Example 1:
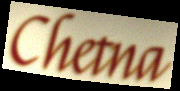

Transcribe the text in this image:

Chetna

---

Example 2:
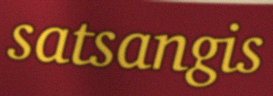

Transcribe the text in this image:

satsangis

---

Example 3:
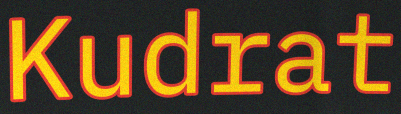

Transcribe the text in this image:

Kudrat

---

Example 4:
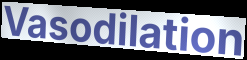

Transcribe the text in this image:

Vasodilation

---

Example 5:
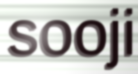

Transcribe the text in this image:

sooji